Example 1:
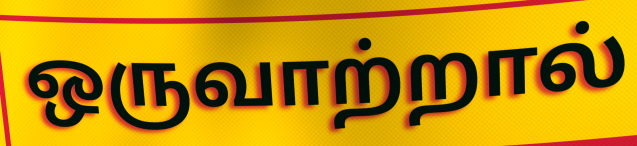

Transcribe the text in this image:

ஒருவாற்றால்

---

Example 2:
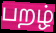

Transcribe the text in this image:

பறழ்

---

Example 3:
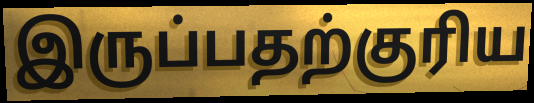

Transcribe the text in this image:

இருப்பதற்குரிய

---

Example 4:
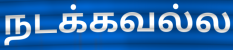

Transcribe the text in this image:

நடக்கவல்ல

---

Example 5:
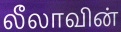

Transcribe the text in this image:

லீலாவின்